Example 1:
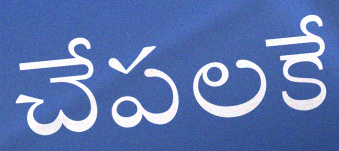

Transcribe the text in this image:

చేపలకే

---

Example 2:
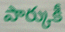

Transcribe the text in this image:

పార్కుకీ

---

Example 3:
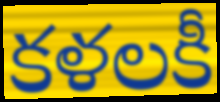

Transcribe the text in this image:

కళలకీ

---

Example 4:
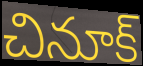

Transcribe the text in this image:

చినూక్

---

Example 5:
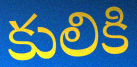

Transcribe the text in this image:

కులికి